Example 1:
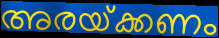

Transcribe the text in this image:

അരയ്‌ക്കണം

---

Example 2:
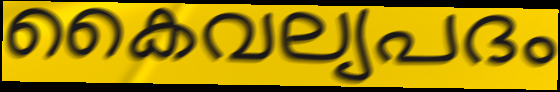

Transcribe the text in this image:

കൈവല്യപദം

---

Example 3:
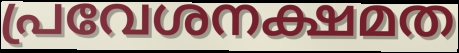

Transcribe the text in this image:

പ്രവേശനക്ഷമത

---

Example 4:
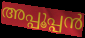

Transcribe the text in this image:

അപ്പൂപ്പൻ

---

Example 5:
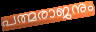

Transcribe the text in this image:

പത്മരാജനും